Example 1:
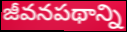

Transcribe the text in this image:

జీవనపథాన్ని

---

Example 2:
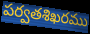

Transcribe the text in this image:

పర్వతశిఖరము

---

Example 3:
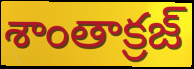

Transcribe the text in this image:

శాంతాక్రజ్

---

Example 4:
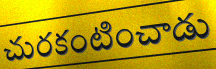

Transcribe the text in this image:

చురకంటించాడు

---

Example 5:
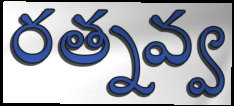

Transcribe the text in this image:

రత్నవ్వ